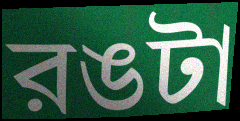
রঙটা